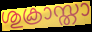
ശുക്രാസ്താ